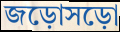
জড়োসড়ো